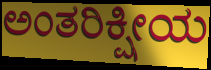
ಅಂತರಿಕ್ಷೀಯ